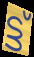
ട്ട്